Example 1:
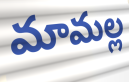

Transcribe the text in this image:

మామల్ల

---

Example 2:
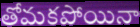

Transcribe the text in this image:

తోమకపోయినా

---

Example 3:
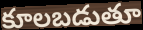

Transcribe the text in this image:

కూలబడుతూ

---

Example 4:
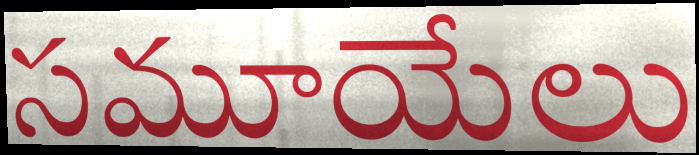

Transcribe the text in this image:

సమూయేలు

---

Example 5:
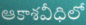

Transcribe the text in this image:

ఆకాశవీధిలో